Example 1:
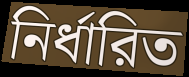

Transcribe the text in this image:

নির্ধারিত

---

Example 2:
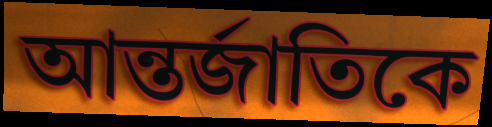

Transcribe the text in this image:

আন্তর্জাতিকে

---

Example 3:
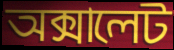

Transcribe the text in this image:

অক্সালেট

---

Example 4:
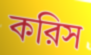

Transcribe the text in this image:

করিস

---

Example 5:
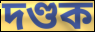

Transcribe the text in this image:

দণ্ডক